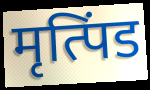
मृत्पिंड